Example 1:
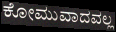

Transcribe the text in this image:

ಕೋಮುವಾದವಲ್ಲ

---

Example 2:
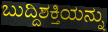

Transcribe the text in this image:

ಬುದ್ದಿಶಕ್ತಿಯನ್ನು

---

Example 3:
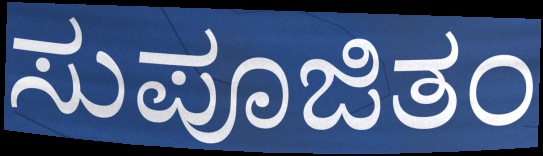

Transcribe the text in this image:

ಸುಪೂಜಿತಂ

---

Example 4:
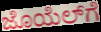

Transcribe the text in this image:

ಜೊಯೆಲ್‌ಗೆ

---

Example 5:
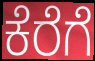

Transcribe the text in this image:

ಕೆರೆಗೆ